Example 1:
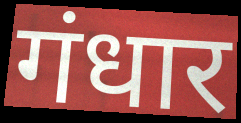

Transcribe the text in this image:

गंधार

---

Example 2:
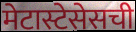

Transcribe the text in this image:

मेटास्टेसेसची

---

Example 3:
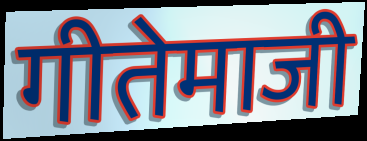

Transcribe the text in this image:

गीतेमाजी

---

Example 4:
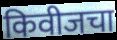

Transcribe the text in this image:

किवीजचा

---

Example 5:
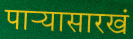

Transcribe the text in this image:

पाऱ्यासारखं